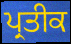
ਪ੍ਰਤੀਕ